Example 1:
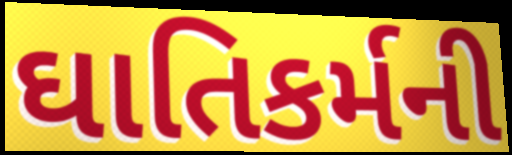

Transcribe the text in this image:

ઘાતિકર્મની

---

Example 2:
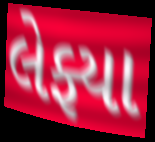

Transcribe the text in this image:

લેફ્યા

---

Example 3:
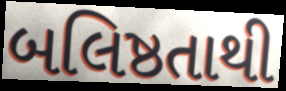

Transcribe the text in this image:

બલિષ્ઠતાથી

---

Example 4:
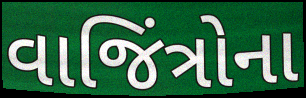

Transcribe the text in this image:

વાજિંત્રોના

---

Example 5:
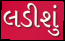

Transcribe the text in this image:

લડીશું